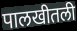
पालखीतली